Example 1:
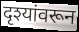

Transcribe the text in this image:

दृश्यांवरून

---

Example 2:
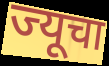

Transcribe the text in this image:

ज्यूचा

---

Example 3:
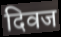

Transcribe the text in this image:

दिवज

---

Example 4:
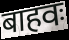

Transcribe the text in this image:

बाहवः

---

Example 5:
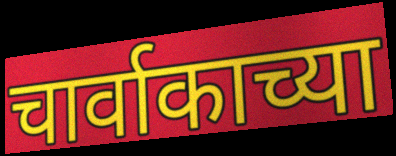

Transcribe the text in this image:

चार्वाकाच्या